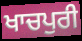
ਖਾਚਪੁਰੀ